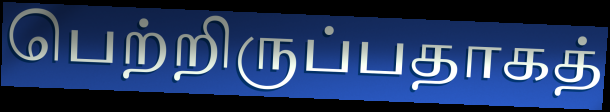
பெற்றிருப்பதாகத்